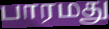
பாரமது